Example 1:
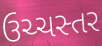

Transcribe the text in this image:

ઉચ્ચસ્તર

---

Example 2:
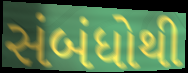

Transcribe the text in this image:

સંબંધોથી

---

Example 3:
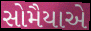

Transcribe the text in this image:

સોમૈયાએ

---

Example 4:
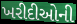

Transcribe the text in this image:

ખરીદીઓની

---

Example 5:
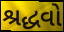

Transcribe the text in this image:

શ્રદ્ધવો